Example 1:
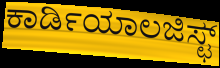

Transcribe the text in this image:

ಕಾರ್ಡಿಯಾಲಜಿಸ್ಟ್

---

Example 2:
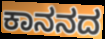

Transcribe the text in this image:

ಕಾನನದ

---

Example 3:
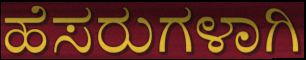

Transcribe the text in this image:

ಹೆಸರುಗಳಾಗಿ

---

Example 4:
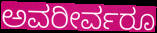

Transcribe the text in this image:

ಅವರೀರ್ವರೂ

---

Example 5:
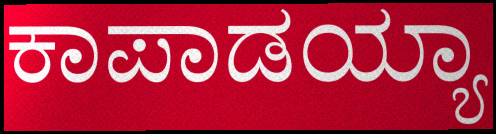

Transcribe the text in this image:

ಕಾಪಾಡಯ್ಯಾ